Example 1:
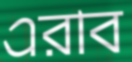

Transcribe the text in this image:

এরাব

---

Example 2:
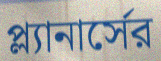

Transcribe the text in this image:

প্ল্যানার্সের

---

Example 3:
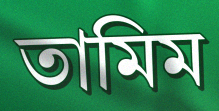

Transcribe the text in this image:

তামিম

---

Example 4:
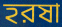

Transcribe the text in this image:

হরষা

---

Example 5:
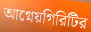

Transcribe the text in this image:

আগ্নেয়গিরিটির